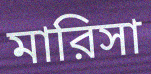
মারিসা